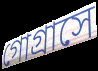
গোগ্রাসে